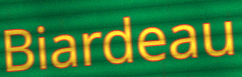
Biardeau